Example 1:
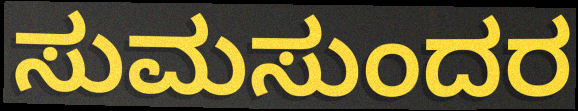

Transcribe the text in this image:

ಸುಮಸುಂದರ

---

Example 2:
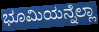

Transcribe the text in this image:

ಭೂಮಿಯನ್ನೆಲ್ಲಾ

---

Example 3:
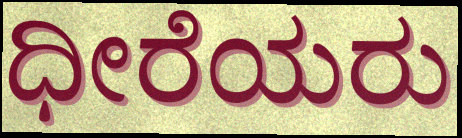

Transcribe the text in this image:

ಧೀರೆಯರು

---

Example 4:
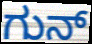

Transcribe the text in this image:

ಗುನ್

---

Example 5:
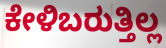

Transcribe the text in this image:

ಕೇಳಿಬರುತ್ತಿಲ್ಲ